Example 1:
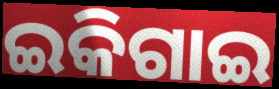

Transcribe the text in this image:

ଇକିଗାଇ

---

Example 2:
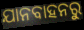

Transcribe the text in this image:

ଯାନବାହନରୁ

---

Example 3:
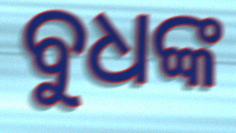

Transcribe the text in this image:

ବୁଧଙ୍କ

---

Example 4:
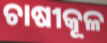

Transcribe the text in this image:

ଚାଷୀକୂଳ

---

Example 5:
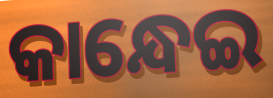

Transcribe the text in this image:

କାନ୍ଧେଇ